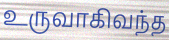
உருவாகிவந்த